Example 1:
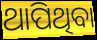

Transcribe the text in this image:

ଥାପିଥିବା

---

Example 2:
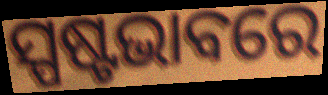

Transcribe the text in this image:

ସ୍ପଷ୍ଟଭାବରେ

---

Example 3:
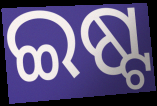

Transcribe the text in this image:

ଇଷ୍ଟ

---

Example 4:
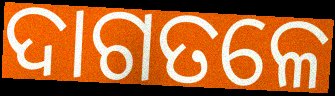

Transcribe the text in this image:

ଦାଗତଳେ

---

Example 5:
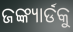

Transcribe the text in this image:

ଜଙ୍କ୍ୟାର୍ଡକୁ